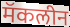
मॅकलीन